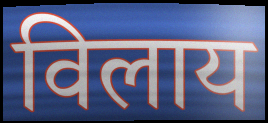
विलाय